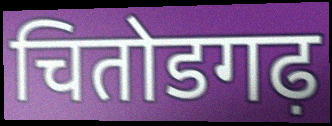
चितोडगढ़